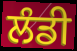
ਲੰਡੀ